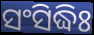
ସଂସିଦ୍ଧିଃ